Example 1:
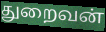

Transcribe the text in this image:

துறைவன்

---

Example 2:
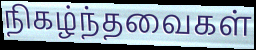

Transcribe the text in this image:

நிகழ்ந்தவைகள்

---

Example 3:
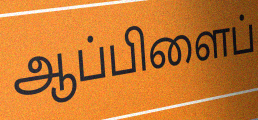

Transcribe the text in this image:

ஆப்பிளைப்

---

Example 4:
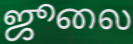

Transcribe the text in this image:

ஜூலை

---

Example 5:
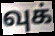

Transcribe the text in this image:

வுக்